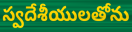
స్వదేశీయులతోను